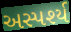
અસ્પર્શ્ય